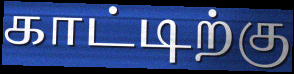
காட்டிற்கு